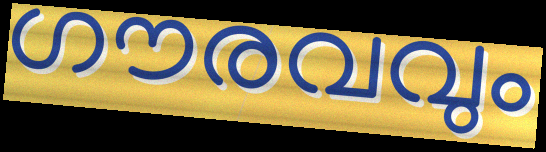
ഗൗരവവും